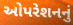
ઓપરેશનનું